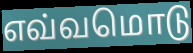
எவ்வமொடு